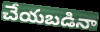
చేయబడినా